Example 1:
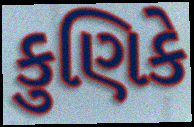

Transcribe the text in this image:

કુણિકે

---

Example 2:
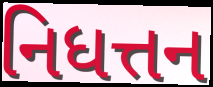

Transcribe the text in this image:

નિધત્તન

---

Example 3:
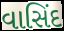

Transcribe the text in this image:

વાસિંદ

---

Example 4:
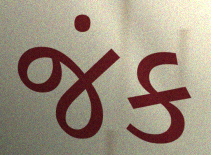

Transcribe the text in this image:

જંક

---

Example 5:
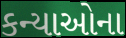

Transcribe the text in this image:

કન્યાઓના